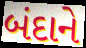
બંદાને